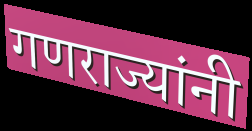
गणराज्यांनी